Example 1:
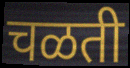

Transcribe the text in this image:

चळती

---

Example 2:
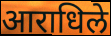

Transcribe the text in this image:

आराधिले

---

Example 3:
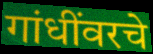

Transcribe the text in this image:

गांधींवरचे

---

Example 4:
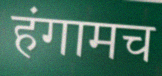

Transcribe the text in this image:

हंगामच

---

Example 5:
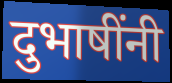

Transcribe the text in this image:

दुभाषींनी